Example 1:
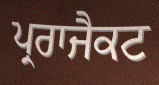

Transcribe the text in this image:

ਪ੍ਰਰਾਜੈਕਟ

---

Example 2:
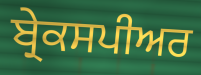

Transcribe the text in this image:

ਬ੍ਰੇਕਸਪੀਅਰ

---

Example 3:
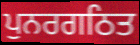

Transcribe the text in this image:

ਪੁਨਰਗਠਿਤ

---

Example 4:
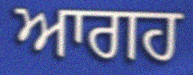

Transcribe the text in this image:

ਆਗਹ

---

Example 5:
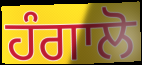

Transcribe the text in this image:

ਹੰਗਾਲੋ